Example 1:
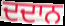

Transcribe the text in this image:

ਦਦਾਨ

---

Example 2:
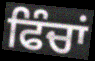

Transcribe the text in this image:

ਫਿੰਚਾਂ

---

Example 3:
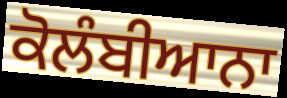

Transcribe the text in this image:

ਕੋਲੰਬੀਆਨਾ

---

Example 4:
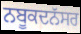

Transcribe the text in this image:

ਨਬੂਕਦਨੱਸਰ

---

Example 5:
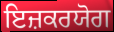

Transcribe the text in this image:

ਇਜ਼ਕਰਯੋਗ